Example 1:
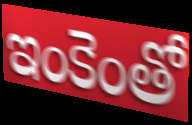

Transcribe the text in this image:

ఇంకెంతో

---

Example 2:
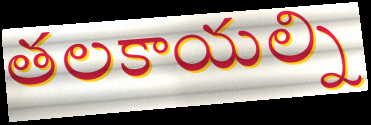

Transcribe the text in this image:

తలకాయల్ని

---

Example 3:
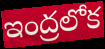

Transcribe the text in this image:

ఇంద్రలోక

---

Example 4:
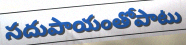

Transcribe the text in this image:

సదుపాయంతోపాటు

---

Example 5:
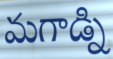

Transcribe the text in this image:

మగాడ్ని